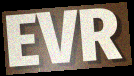
EVR